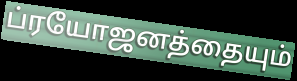
ப்ரயோஜனத்தையும்